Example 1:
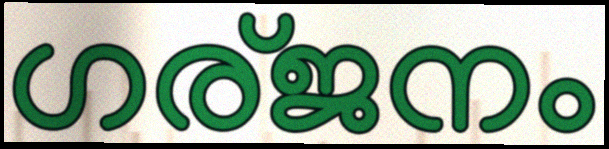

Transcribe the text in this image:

ഗര്ജനം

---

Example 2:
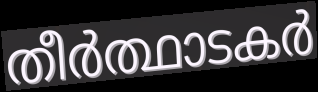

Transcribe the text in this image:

തീർത്ഥാടകർ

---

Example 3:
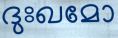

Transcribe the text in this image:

ദുഃഖമോ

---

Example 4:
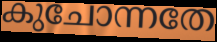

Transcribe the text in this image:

കുചോന്നതേ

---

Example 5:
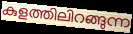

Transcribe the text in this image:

കുളത്തിലിറങ്ങുന്ന